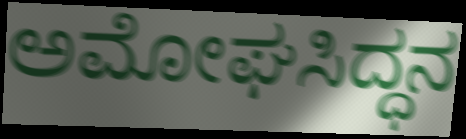
ಅಮೋಘಸಿದ್ಧನ